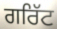
ਗਰਿੱਟ